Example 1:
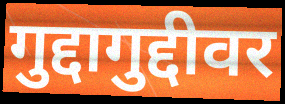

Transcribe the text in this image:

गुद्दागुद्दीवर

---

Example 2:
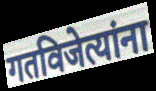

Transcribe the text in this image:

गतविजेत्यांना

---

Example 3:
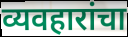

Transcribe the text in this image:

व्यवहारांचा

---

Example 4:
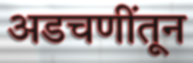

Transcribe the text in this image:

अडचणींतून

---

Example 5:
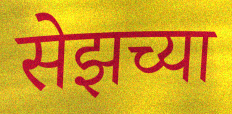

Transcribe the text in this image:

सेझच्या